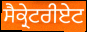
ਸੈਕ੍ਰੇਟਰੀਏਟ